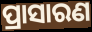
ପ୍ରାସାରଣ